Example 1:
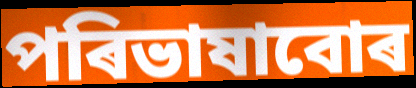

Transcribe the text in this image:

পৰিভাষাবোৰ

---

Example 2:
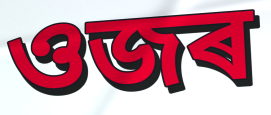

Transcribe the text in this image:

ওজৰ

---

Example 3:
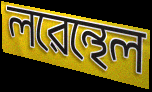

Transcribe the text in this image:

লৱেন্থেল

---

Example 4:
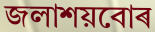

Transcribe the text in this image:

জলাশয়বোৰ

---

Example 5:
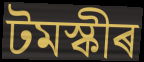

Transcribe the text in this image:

টমস্কীৰ